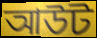
আউট